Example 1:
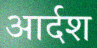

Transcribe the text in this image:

आर्दश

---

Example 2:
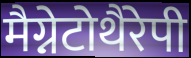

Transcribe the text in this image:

मैग्नेटोथैरेपी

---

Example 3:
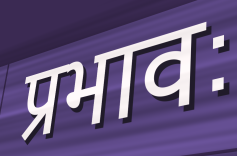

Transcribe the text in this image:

प्रभावः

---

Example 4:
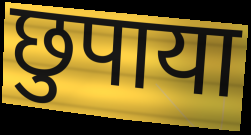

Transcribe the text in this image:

छुपाया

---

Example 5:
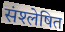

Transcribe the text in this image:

संश्लेषित